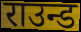
राउन्ड